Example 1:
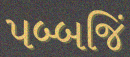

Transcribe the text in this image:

પબ્બજિં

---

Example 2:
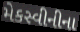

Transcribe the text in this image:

મેકસ્વીનીના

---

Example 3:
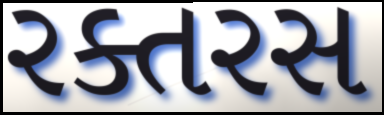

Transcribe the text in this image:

રક્તરસ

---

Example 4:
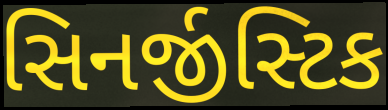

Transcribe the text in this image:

સિનર્જીસ્ટિક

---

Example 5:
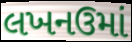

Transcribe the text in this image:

લખનઉમાં